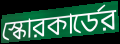
স্কোরকার্ডের